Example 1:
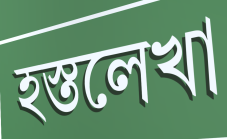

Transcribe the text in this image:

হস্তলেখা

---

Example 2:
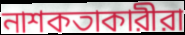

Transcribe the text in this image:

নাশকতাকারীরা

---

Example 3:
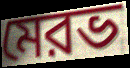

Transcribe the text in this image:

মেরভ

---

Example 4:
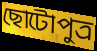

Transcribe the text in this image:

ছোটোপুত্র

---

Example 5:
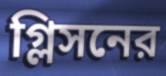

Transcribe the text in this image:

গ্লিসনের